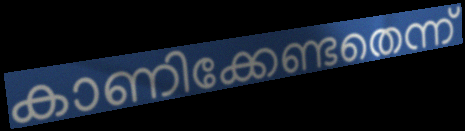
കാണിക്കേണ്ടതെന്ന്